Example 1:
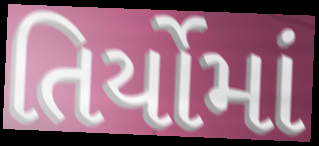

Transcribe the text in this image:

તિર્યોમાં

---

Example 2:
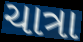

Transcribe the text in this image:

ચાત્રા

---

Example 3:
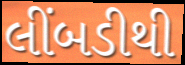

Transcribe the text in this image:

લીંબડીથી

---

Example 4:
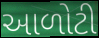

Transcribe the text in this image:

આળોટી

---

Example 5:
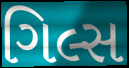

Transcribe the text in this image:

ગિલ્સ